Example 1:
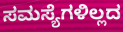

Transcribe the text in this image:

ಸಮಸ್ಯೆಗಳಿಲ್ಲದ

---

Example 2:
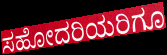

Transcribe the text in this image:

ಸಹೋದರಿಯರಿಗೂ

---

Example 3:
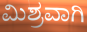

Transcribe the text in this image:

ಮಿಶ್ರವಾಗಿ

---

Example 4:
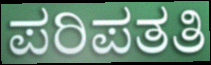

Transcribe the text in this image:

ಪರಿಪತತಿ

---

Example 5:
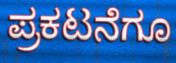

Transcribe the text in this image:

ಪ್ರಕಟನೆಗೂ